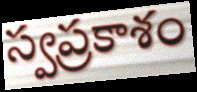
స్వప్రకాశం